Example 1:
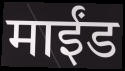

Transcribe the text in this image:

माईंड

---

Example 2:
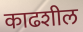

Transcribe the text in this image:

काढशील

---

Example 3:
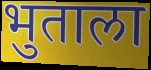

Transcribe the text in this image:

भुताला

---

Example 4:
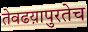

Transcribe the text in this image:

तेवढय़ापुरतेच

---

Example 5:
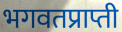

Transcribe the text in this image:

भगवतप्राप्ती